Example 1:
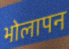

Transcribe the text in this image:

भोलापन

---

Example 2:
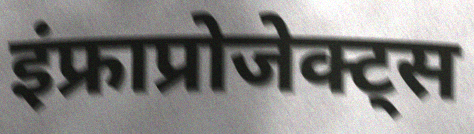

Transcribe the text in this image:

इंफ्राप्रोजेक्ट्स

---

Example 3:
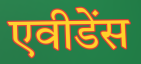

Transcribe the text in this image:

एवीडेंस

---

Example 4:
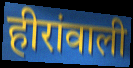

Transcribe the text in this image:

हीरांवाली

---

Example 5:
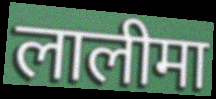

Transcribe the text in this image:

लालीमा